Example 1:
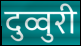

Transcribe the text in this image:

दुव्वुरी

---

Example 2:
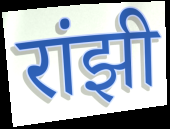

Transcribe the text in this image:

रांझी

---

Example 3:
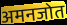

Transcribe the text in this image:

अमनजोत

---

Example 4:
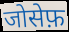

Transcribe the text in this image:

जोसेफ़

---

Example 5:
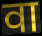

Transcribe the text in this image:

वा